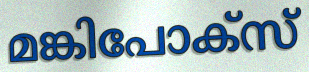
മങ്കിപോക്സ്